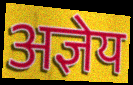
अज्ञेय